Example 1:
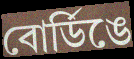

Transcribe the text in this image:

বোর্ডিঙে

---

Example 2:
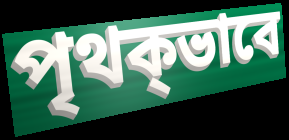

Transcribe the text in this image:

পৃথক্ভাবে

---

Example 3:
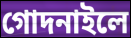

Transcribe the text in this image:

গোদনাইলে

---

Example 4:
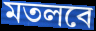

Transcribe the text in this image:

মতলবে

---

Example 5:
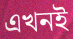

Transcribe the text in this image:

এখনই